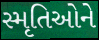
સ્મૃતિઓને